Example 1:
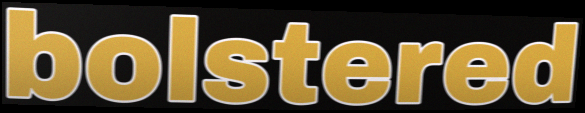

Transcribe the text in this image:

bolstered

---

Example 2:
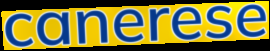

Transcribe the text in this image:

canerese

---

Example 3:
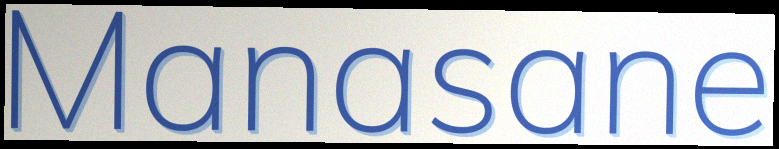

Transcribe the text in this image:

Manasane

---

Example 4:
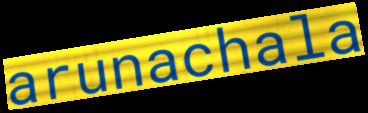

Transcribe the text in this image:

arunachala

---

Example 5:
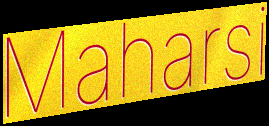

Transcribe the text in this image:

Maharsi